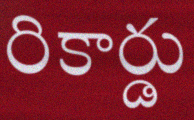
రికార్డు